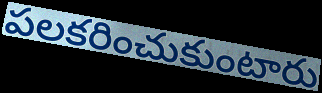
పలకరించుకుంటారు